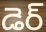
డెర్